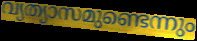
വ്യത്യാസമുണ്ടെന്നും